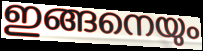
ഇങ്ങനെയും